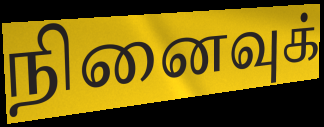
நினைவுக்